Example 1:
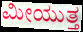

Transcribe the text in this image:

ಮೀಯುತ್ತ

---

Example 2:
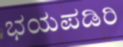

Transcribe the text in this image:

ಭಯಪಡಿರಿ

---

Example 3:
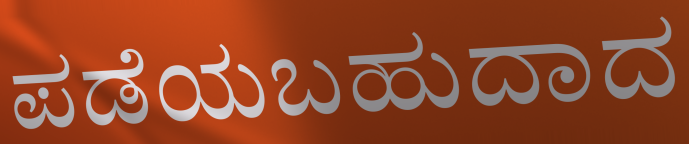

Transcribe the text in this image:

ಪಡೆಯಬಹುದಾದ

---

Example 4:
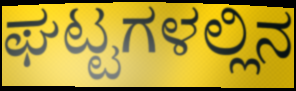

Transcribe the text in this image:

ಘಟ್ಟಗಳಲ್ಲಿನ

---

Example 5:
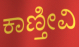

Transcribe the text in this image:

ಕಾಣ್ತೀವಿ